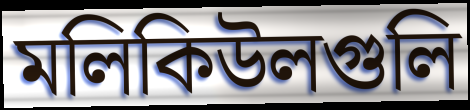
মলিকিউলগুলি